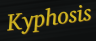
Kyphosis